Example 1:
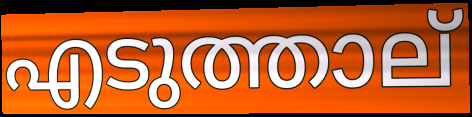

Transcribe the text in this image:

എടുത്താല്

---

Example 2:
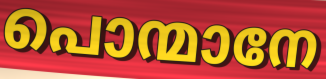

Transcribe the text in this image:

പൊന്മാനേ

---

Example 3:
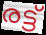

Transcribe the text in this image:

രട്ട്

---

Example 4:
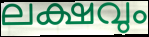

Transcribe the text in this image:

ലക്ഷവും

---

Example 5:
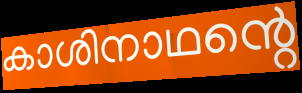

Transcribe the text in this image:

കാശിനാഥന്റെ